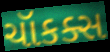
ચૉકક્સ